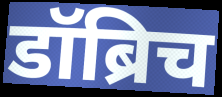
डॉब्रिच